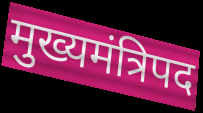
मुख्यमंत्रिपद